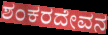
ಶಂಕರದೇವನ